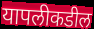
यापलीकडील